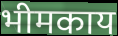
भीमकाय